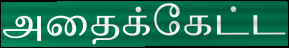
அதைக்கேட்ட